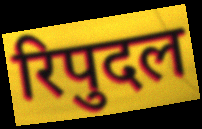
रिपुदल